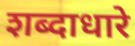
शब्दाधारे